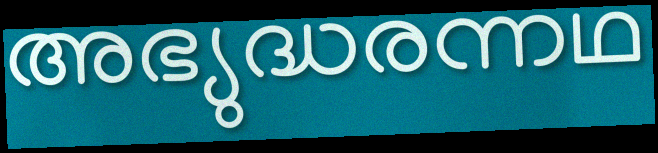
അഭ്യുദ്ധരന്നഥ